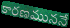
కారణముననే